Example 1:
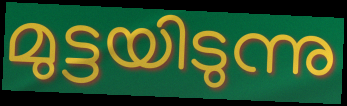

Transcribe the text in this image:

മുട്ടയിടുന്നു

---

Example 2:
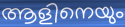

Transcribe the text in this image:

ആളിനെയും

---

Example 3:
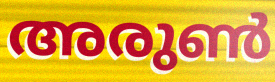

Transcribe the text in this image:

അരുൺ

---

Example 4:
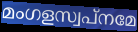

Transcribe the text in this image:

മംഗളസ്വപ്നമേ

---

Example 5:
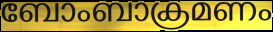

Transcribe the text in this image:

ബോംബാക്രമണം